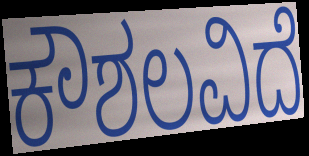
ಕೌಶಲವಿದೆ